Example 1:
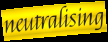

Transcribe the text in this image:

neutralising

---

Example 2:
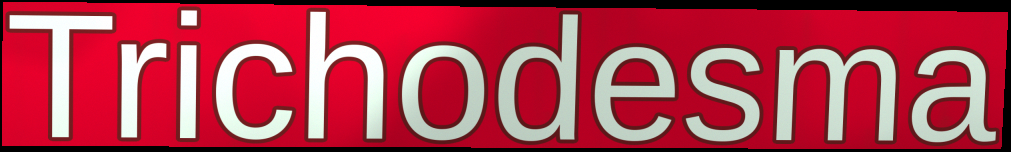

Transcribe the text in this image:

Trichodesma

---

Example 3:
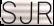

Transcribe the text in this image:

SJR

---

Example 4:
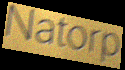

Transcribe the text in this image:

Natorp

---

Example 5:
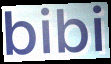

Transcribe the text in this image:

bibi